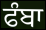
ਫੰਬਾ